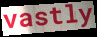
vastly